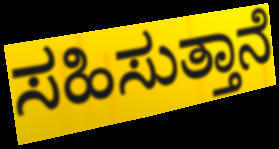
ಸಹಿಸುತ್ತಾನೆ